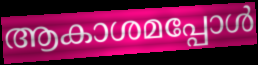
ആകാശമപ്പോൾ